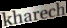
kharech